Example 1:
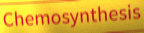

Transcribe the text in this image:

Chemosynthesis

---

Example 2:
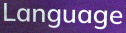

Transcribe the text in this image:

Language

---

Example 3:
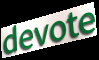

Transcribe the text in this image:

devote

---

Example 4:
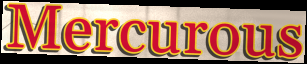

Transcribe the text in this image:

Mercurous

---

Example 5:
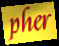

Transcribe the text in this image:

pher